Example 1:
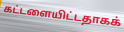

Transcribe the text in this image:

கட்டளையிட்டதாகக்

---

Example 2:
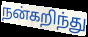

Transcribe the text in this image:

நன்கறிந்து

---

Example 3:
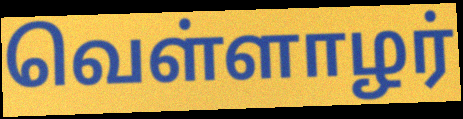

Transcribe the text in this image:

வெள்ளாழர்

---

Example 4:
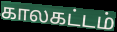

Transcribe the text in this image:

காலகட்டம்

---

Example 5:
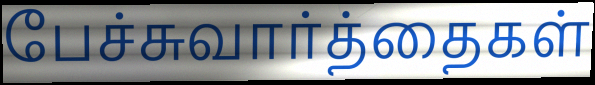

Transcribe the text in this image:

பேச்சுவார்த்தைகள்